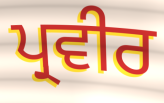
ਪ੍ਰਵੀਰ